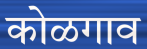
कोळगाव